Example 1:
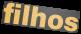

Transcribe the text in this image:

filhos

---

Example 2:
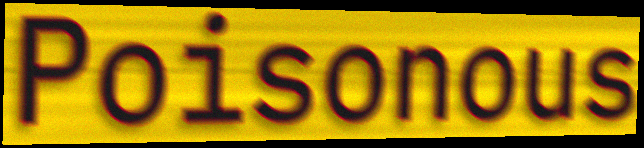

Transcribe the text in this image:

Poisonous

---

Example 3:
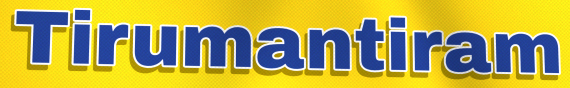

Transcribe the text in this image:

Tirumantiram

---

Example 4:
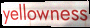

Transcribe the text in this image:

yellowness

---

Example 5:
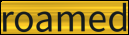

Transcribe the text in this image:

roamed